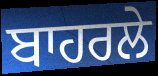
ਬਾਹਰਲੇ